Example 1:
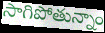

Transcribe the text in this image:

సాగిపోతున్నాం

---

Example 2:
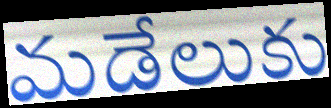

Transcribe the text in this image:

మడేలుకు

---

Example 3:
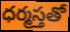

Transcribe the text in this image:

ధర్మస్తతో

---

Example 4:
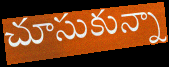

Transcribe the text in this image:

చూసుకున్నా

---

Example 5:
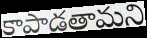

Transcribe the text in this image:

కాపాడతామని